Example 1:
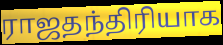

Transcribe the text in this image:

ராஜதந்திரியாக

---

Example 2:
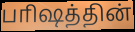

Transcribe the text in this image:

பரிஷத்தின்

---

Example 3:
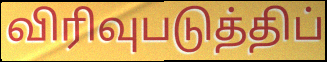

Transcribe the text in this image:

விரிவுபடுத்திப்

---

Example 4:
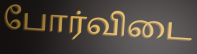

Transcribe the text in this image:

போர்விடை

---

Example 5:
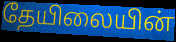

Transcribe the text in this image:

தேயிலையின்